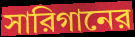
সারিগানের